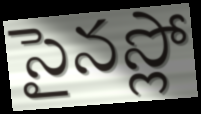
సైనస్లో